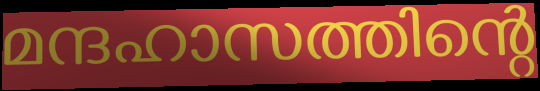
മന്ദഹാസത്തിന്റെ